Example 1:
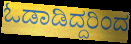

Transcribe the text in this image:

ಓಡಾಡಿದ್ದರಿಂದ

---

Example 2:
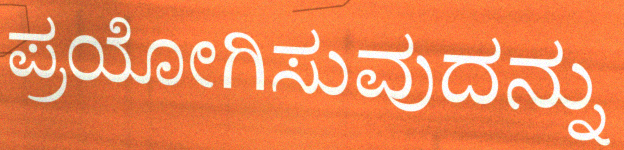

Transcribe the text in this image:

ಪ್ರಯೋಗಿಸುವುದನ್ನು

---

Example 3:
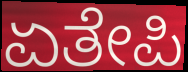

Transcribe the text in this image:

ಏತೇಪಿ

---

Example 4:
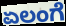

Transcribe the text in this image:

ಏಲಂಗೆ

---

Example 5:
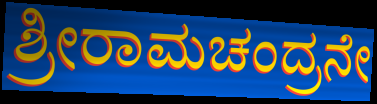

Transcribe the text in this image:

ಶ್ರೀರಾಮಚಂದ್ರನೇ